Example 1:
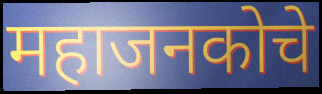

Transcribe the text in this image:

महाजनकोचे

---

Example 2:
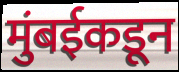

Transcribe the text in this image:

मुंबईकडून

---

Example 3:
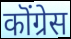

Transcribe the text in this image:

कॊंग्रेस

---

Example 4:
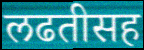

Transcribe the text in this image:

लढतीसह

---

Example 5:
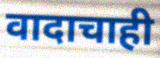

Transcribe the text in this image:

वादाचाही